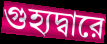
গুহ্যদ্বারে